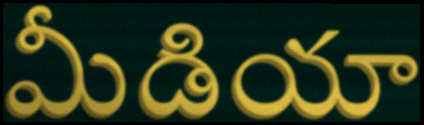
మీడియా